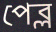
পেব্ল